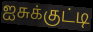
ஐசுக்குட்டி